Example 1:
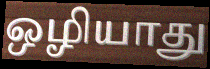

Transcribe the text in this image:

ஒழியாது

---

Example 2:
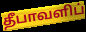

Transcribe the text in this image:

தீபாவளிப்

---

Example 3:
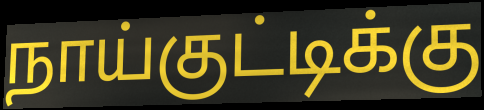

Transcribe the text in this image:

நாய்குட்டிக்கு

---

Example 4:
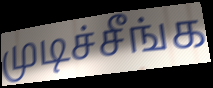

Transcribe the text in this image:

முடிச்சீங்க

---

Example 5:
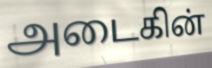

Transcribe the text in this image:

அடைகின்